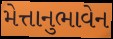
મેત્તાનુભાવેન